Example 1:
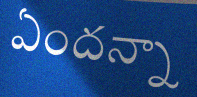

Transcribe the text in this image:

ఏందన్నా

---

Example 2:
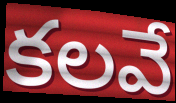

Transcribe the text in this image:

కలవే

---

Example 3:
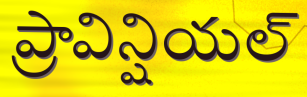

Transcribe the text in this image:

ప్రావిన్షియల్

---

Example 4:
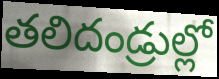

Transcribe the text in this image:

తలిదండ్రుల్లో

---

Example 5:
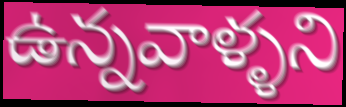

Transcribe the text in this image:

ఉన్నవాళ్ళని